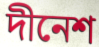
দীনেশ